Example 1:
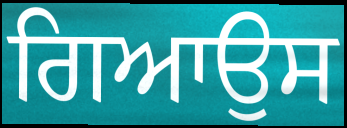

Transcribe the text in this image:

ਗਿਆਉਸ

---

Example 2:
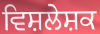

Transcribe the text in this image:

ਵਿਸ਼ਲੇਸ਼ਕ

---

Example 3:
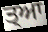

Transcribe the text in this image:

ਤ੍ਆ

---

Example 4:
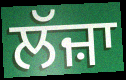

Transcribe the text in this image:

ਲੱਜ਼ਾ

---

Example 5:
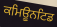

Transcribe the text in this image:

ਕਮਿਊਨਟਿਡ